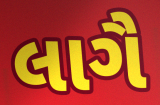
લાગૈ